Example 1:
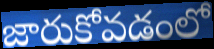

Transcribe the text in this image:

జారుకోవడంలో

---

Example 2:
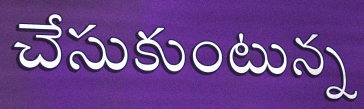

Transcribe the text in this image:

చేసుకుంటున్న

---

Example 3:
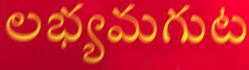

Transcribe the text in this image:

లభ్యమగుట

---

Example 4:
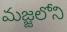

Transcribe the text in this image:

మజ్జలోని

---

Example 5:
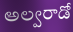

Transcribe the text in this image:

అల్వరాడో